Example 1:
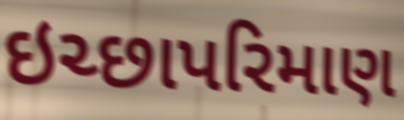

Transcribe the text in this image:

ઇચ્છાપરિમાણ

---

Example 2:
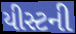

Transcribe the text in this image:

યીસ્ટની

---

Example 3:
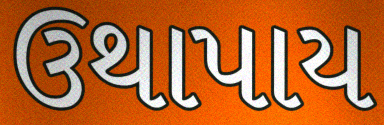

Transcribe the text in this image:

ઉથાપાય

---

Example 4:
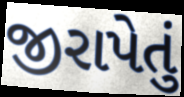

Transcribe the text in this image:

જીરાપેતું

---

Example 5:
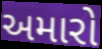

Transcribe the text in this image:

અમારો